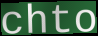
chto